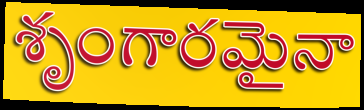
శృంగారమైనా